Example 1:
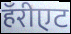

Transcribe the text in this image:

हॅरीएट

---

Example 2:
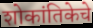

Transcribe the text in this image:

शोकांतिकेचे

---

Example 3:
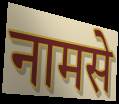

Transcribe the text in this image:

नामसे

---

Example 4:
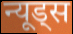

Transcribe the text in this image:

न्यूड्स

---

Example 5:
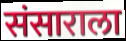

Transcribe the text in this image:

संसाराला